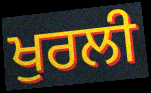
ਖੁਰਲੀ